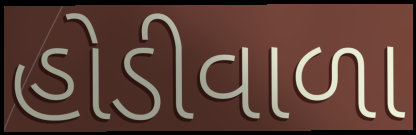
હોડીવાળા